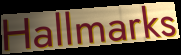
Hallmarks